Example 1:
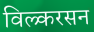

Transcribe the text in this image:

विल्करसन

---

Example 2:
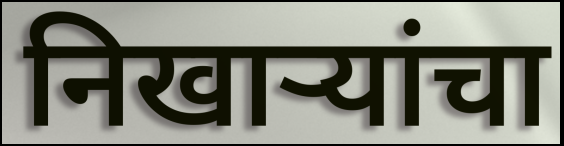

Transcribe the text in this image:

निखार्‍यांचा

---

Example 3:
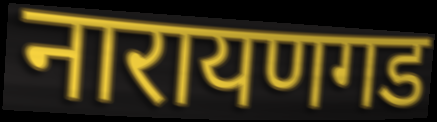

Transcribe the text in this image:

नारायणगड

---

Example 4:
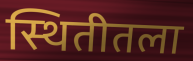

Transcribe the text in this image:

स्थितीतला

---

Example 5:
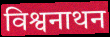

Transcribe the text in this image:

विश्वनाथन